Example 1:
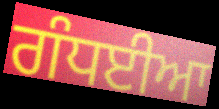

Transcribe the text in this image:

ਗੰਧਈਆ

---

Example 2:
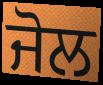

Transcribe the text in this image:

ਜੋਲ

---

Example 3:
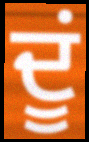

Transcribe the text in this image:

ਦੂਂ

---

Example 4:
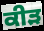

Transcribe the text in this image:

ਕੀੜ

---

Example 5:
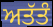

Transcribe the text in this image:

ਅਤੱਤੰ